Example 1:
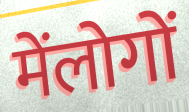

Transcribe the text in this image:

मेंलोगों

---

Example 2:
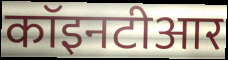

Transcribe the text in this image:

कॉइनटीआर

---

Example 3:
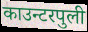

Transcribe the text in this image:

काउन्टरपुली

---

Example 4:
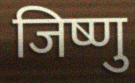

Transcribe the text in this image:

जिष्णु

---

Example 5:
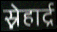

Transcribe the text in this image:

स्नेहार्द्र